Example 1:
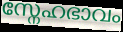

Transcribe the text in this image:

സ്നേഹഭാവം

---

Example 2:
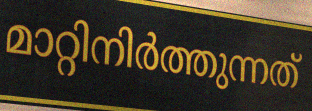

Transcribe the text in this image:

മാറ്റിനിർത്തുന്നത്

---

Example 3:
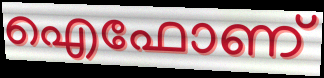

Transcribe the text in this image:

ഐഫോണ്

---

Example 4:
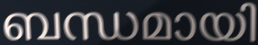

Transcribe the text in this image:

ബന്ധമായി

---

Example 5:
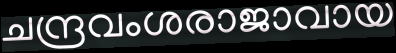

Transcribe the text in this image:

ചന്ദ്രവംശരാജാവായ